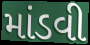
માંડવી